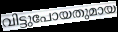
വിട്ടുപോയതുമായ